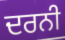
ਦਰਨੀ